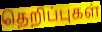
தெறிப்புகள்